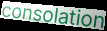
consolation